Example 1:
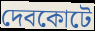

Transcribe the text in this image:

দেবকোটে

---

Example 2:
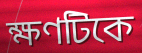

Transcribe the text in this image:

ক্ষণটিকে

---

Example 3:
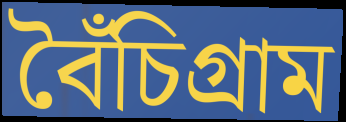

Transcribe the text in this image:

বৈঁচিগ্রাম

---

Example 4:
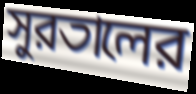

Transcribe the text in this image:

সুরতালের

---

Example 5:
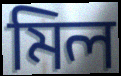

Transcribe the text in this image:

মিল